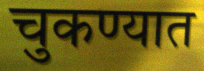
चुकण्यात